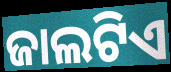
ଜାଲଟିଏ